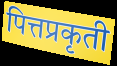
पित्तप्रकृती